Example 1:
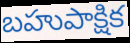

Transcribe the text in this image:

బహుపాక్షిక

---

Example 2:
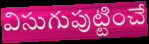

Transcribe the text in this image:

విసుగుపుట్టించే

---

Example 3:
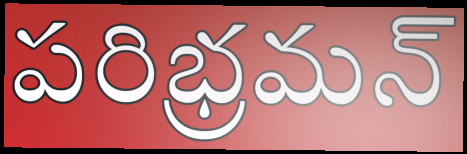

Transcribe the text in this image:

పరిభ్రమన్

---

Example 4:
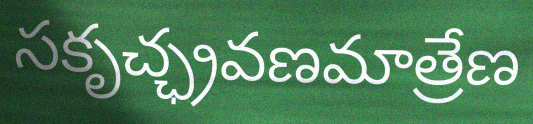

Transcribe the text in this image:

సకృచ్ఛ్రవణమాత్రేణ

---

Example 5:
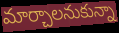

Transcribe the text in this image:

మార్చాలనుకున్నా